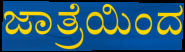
ಜಾತ್ರೆಯಿಂದ